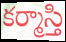
కర్మాస్తి